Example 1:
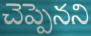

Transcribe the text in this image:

చెప్పెనని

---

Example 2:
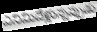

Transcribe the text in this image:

ఎనిమిదేళ్లున్నప్పుడు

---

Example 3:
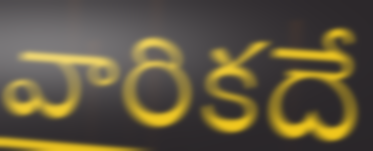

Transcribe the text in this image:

వారికదే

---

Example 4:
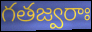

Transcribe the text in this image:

గతజ్వరాః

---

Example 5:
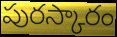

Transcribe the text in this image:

పురస్కారం